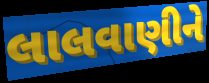
લાલવાણીને